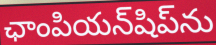
ఛాంపియన్‌షిప్‌ను